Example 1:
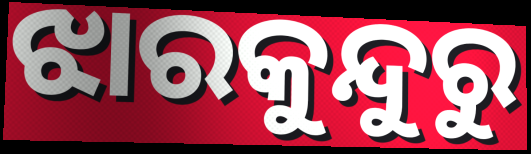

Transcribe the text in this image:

ଝାରକୁନ୍ଦୁରୁ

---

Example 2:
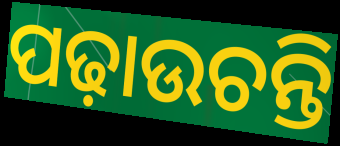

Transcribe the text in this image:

ପଢ଼ାଉଚନ୍ତି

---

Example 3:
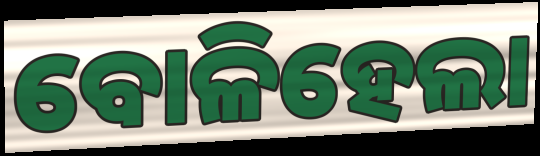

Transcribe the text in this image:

ବୋଳିହେଲା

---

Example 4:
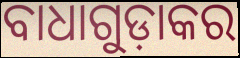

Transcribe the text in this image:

ବାଧାଗୁଡ଼ାକର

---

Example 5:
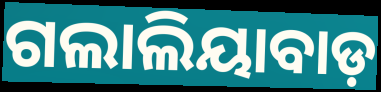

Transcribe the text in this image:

ଗଲାଲିୟାବାଡ଼